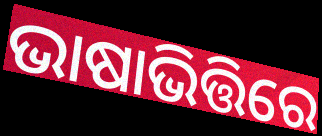
ଭାଷାଭିତ୍ତିରେ